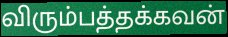
விரும்பத்தக்கவன்